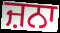
ਜ਼ਨਾ